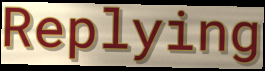
Replying